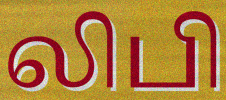
லிபி